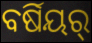
ବର୍ଷିୟର୍